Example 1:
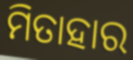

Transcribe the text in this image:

ମିତାହାର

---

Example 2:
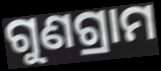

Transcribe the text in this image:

ଗୁଣଗ୍ରାମ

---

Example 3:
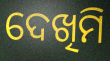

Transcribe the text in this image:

ଦେଖିମି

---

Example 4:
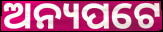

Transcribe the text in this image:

ଅନ୍ୟପଟେ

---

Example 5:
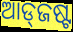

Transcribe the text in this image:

ଆଡ୍‌ଜଷ୍ଟ